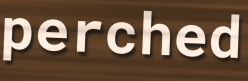
perched